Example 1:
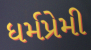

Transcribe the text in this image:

ધર્મપ્રેમી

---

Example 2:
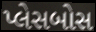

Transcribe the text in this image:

પ્લેસબોસ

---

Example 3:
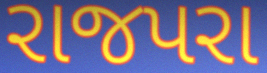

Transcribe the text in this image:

રાજપરા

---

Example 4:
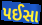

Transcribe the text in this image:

પઈસા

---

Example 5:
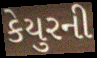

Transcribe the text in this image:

કેયુરની